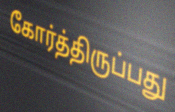
கோர்த்திருப்பது